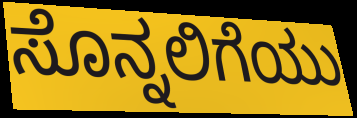
ಸೊನ್ನಲಿಗೆಯು